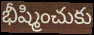
భీష్మించుకు